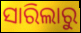
ସାରିଲାରୁ